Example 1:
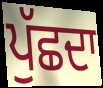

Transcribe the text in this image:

ਪੁੱਛਦਾ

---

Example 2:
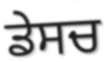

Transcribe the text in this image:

ਡੇਸਚ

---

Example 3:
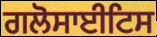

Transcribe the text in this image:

ਗਲੋਸਾਈਟਿਸ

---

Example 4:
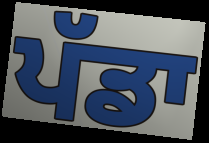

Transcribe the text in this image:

ਪੱਡਾ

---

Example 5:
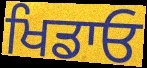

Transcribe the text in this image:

ਖਿਡਾਓ